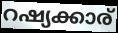
റഷ്യക്കാര്